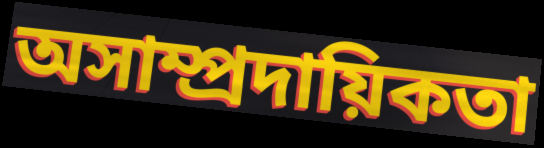
অসাম্প্রদায়িকতা